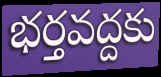
భర్తవద్దకు